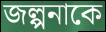
জল্পনাকে